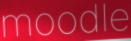
moodle